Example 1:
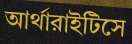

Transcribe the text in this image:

আর্থারাইটিসে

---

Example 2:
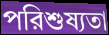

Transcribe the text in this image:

পরিশুষ্যতা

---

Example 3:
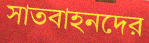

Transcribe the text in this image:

সাতবাহনদের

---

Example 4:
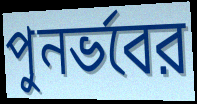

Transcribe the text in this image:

পুনর্ভবের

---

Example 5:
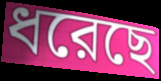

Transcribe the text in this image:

ধরেছে